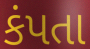
કંપતા